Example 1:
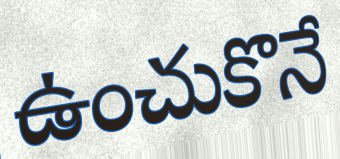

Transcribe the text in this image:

ఉంచుకొనే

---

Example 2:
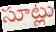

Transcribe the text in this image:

సూట్లు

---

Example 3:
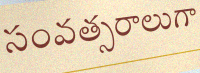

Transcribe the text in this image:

సంవత్సరాలుగా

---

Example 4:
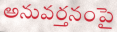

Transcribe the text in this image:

అనువర్తనంపై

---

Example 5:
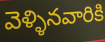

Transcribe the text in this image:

వెళ్ళినవారికి